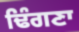
ਢਿੰਗਣਾ